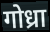
गोध्रा